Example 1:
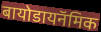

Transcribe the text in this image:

बायोडायनॅमिक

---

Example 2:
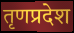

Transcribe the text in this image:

तृणप्रदेश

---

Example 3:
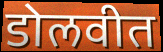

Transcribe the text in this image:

डोलवीत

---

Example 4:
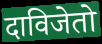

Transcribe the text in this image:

दाविजेतो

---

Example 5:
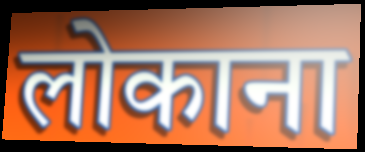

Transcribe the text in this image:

लोकाना